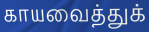
காயவைத்துக்